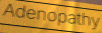
Adenopathy